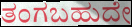
ತಂಗಬಹುದೇ